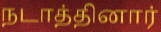
நடாத்தினார்